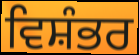
ਵਿਸ਼ੰਭਰ